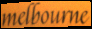
melbourne